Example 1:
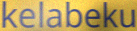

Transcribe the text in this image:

kelabeku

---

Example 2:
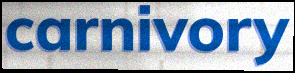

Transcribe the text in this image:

carnivory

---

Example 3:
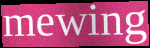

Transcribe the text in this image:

mewing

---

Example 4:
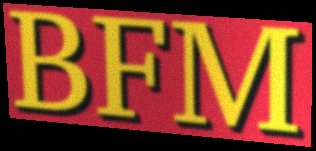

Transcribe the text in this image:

BFM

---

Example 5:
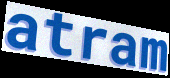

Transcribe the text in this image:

atram